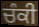
ਚੰਕੀ